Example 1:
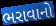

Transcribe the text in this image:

ભરાવાનો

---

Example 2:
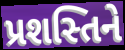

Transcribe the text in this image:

પ્રશસ્તિને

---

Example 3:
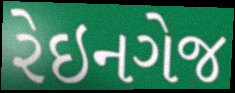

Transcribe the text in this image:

રેઇનગેજ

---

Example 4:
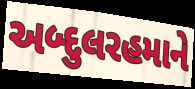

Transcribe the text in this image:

અબ્દુલરહમાને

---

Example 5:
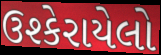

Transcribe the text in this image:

ઉશ્કેરાયેલો